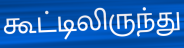
கூட்டிலிருந்து